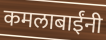
कमलाबाईंनी